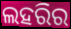
ଲହରିର